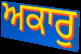
ਅਕਾਰੁ